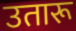
उतारू